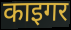
काइगर